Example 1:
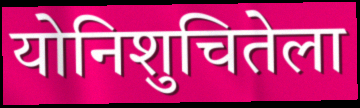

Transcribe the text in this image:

योनिशुचितेला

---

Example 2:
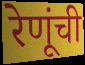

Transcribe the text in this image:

रेणूंची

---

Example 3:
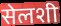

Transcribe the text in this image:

सेलशी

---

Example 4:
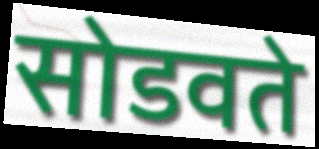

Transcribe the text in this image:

सोडवते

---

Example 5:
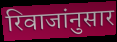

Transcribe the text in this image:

रिवाजांनुसार